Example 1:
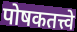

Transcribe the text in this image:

पोषकतत्त्वे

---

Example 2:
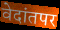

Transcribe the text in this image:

वेदांतपर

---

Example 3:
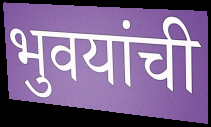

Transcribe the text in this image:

भुवयांची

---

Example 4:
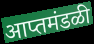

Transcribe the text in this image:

आप्तमंडळी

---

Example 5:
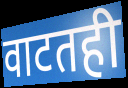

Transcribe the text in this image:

वाटतही